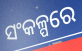
ସଂକଳ୍ପରେ